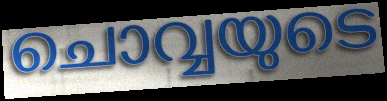
ചൊവ്വയുടെ